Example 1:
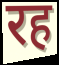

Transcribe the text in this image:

रह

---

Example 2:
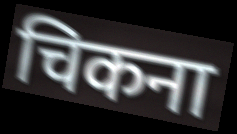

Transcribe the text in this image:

चिकना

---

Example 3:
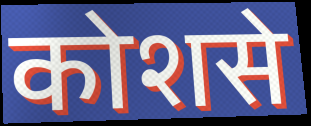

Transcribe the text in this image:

कोशसे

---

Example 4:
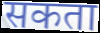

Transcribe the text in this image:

सकता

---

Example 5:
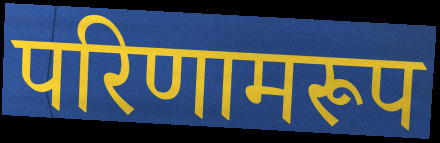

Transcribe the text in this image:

परिणामरूप